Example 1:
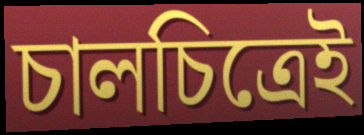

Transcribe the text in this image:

চালচিত্রেই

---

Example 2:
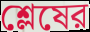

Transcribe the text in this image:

শ্লেষের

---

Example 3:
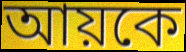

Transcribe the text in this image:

আয়কে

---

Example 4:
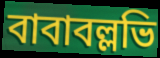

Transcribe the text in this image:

বাবাবল্লভি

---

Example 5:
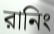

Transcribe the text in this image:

রানিং